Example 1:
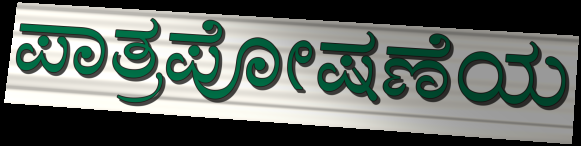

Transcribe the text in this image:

ಪಾತ್ರಪೋಷಣೆಯ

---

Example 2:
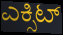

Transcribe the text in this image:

ಎಕ್ಸಿಟ್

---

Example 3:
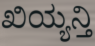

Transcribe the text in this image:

ಖಿಯ್ಯನ್ತಿ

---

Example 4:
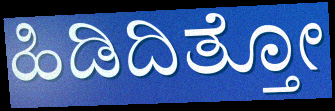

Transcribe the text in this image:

ಹಿಡಿದಿತ್ತೋ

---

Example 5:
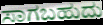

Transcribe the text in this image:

ಸಾಗಬಹುದು